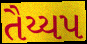
તૈય્યપ